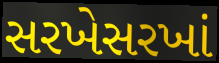
સરખેસરખાં